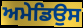
ਅਮੇਡਿਉਸ